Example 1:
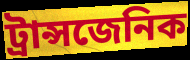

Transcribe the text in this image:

ট্রান্সজেনিক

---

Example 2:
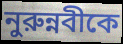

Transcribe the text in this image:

নুরুন্নবীকে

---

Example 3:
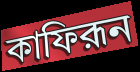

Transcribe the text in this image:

কাফিরূন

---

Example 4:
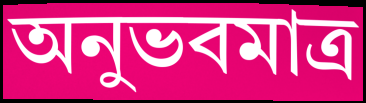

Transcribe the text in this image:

অনুভবমাত্র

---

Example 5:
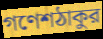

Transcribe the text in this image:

গণেশঠাকুর